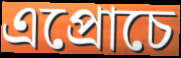
এপ্রোচে